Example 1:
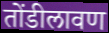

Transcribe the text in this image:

तोंडीलावण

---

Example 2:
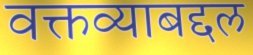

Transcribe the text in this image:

वक्तव्याबद्दल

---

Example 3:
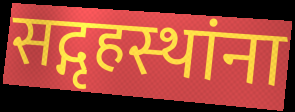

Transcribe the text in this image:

सद्गृहस्थांना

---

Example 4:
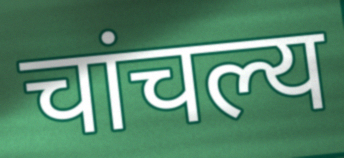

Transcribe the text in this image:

चांचल्य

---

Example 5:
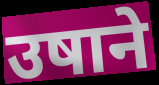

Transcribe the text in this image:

उषाने